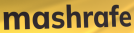
mashrafe